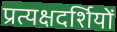
प्रत्यक्षदर्शियों